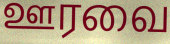
ஊரவை